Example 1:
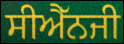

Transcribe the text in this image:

ਸੀਐੱਨਜੀ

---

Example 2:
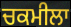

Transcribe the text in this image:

ਚਕਮੀਲਾ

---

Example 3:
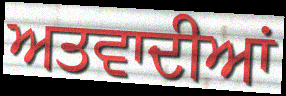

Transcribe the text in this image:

ਅਤਵਾਦੀਆਂ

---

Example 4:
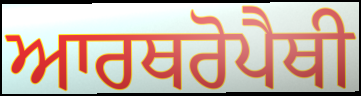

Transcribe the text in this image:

ਆਰਥਰੋਪੈਥੀ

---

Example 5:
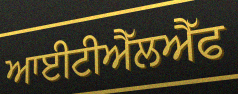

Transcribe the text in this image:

ਆਈਟੀਐੱਲਐੱਫ